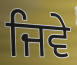
ਜਿਵੇ